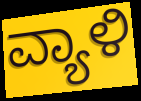
ವ್ಯಾಳಿ